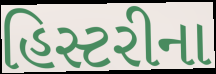
હિસ્ટરીના